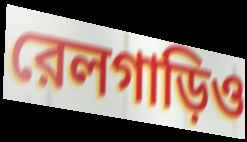
রেলগাড়িও